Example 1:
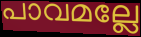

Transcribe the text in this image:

പാവമല്ലേ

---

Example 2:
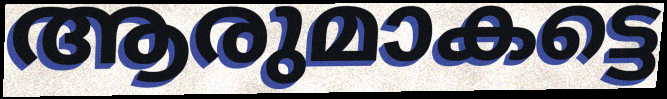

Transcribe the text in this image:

ആരുമാകട്ടെ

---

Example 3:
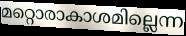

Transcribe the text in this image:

മറ്റൊരാകാശമില്ലെന്ന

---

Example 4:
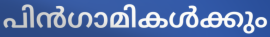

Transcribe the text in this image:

പിൻഗാമികൾക്കും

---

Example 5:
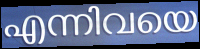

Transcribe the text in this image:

എന്നിവയെ